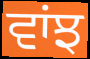
ਵਾਂਝ